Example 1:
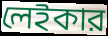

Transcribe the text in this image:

লেইকার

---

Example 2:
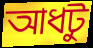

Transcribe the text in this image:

আধটু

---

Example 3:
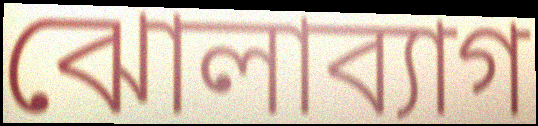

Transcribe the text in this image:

ঝোলাব্যাগ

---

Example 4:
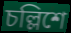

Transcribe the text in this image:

চল্লিশে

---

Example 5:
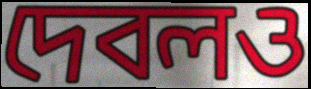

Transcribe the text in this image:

দেবলও